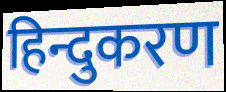
हिन्दुकरण